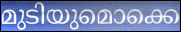
മുടിയുമൊക്കെ